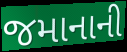
જમાનાની